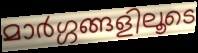
മാർഗ്ഗങ്ങളിലൂടെ